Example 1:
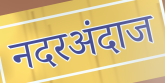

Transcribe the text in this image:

नदरअंदाज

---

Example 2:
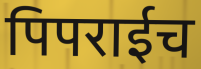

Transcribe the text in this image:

पिपराईच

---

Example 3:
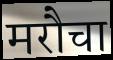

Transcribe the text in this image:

मरौचा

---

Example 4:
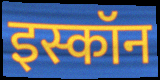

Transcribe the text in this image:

इस्‍कॉन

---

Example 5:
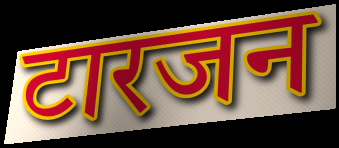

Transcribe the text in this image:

टारजन